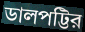
ডালপট্টির